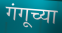
गंगूच्या